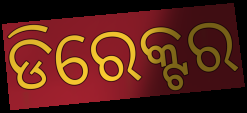
ଡିରେକ୍ଟର